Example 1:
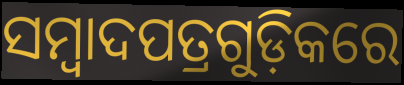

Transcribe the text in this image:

ସମ୍ୱାଦପତ୍ରଗୁଡ଼ିକରେ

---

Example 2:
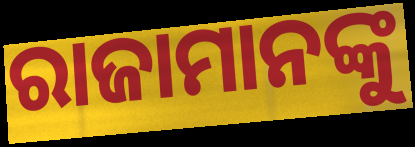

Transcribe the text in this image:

ରାଜାମାନଙ୍କୁ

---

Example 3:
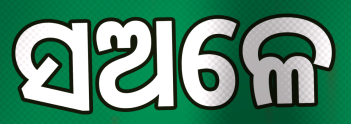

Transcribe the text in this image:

ସଅଳେ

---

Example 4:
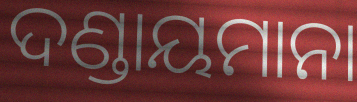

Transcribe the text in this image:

ଦଣ୍ଡାୟମାନା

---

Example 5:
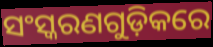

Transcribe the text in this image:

ସଂସ୍କରଣଗୁଡ଼ିକରେ